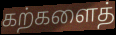
கற்களைத்